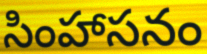
సింహాసనం